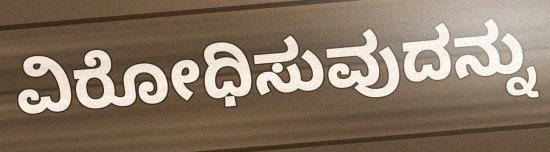
ವಿರೋಧಿಸುವುದನ್ನು